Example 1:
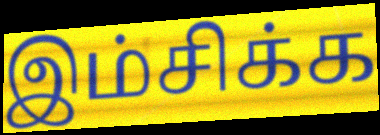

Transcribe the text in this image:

இம்சிக்க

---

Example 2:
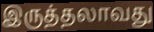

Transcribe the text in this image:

இருத்தலாவது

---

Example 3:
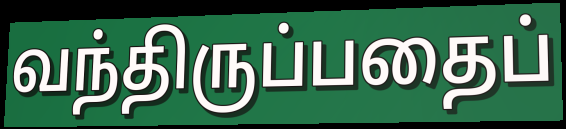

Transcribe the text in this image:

வந்திருப்பதைப்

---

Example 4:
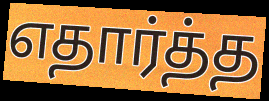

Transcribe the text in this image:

எதார்த்த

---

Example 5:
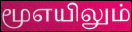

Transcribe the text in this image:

மூஎயிலும்